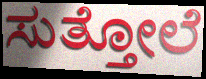
ಸುತ್ತೋಲೆ